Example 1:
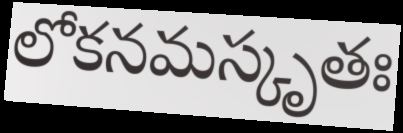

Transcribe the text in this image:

లోకనమస్కృతః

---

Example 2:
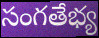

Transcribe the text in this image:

సంగతేభ్య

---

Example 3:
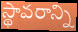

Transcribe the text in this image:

స్థావరాన్ని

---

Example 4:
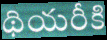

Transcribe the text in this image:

థియరీకి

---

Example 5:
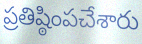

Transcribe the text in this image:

ప్రతిష్ఠింపచేశారు